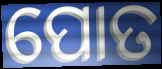
ପୋତ